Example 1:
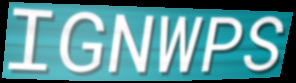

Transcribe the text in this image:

IGNWPS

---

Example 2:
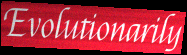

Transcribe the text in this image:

Evolutionarily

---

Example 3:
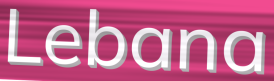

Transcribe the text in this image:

Lebana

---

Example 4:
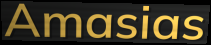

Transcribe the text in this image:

Amasias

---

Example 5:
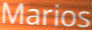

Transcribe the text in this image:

Marios